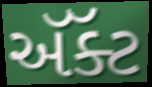
ઍૅક્ટ